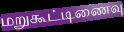
மறுகூட்டிணைவு